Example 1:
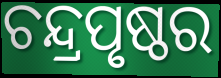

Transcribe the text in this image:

ଚନ୍ଦ୍ରପୃଷ୍ଠର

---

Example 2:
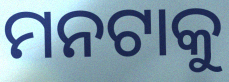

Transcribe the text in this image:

ମନଟାକୁ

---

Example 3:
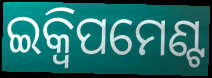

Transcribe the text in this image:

ଇକ୍ୱିପମେଣ୍ଟ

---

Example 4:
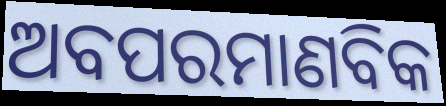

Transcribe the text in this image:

ଅବପରମାଣବିକ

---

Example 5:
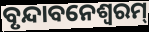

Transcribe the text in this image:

ବୃନ୍ଦାବନେଶ୍ୱରମ୍